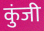
कुंजी